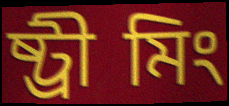
ষ্ট্ৰীমিং